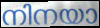
നിനയാ